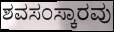
ಶವಸಂಸ್ಕಾರವು